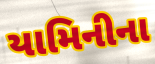
યામિનીના